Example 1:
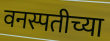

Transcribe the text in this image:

वनस्पतीच्या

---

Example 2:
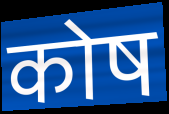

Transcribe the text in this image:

कोष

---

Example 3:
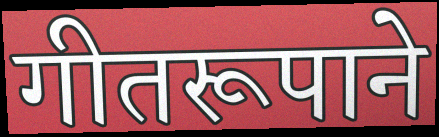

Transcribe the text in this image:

गीतरूपाने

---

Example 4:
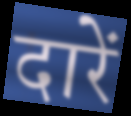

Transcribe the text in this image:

दारें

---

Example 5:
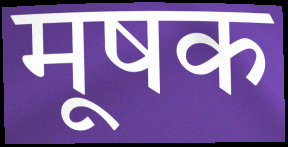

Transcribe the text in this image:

मूषक